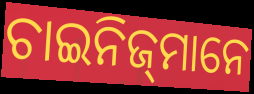
ଚାଇନିଜ୍‍ମାନେ